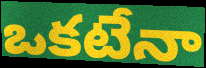
ఒకటేనా